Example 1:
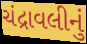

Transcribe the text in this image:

ચંદ્રાવલીનું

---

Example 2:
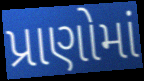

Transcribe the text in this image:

પ્રાણોમાં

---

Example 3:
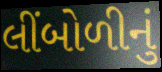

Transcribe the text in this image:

લીંબોળીનું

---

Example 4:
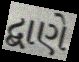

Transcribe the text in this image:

દ્બાણે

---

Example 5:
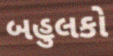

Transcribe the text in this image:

બહુલકો